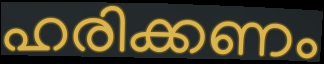
ഹരിക്കണം